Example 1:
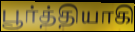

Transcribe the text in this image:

பூர்த்தியாகி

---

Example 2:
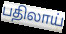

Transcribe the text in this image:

பதிலாய்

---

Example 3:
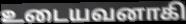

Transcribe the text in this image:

உடையவனாகி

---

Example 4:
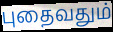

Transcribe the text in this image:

புதைவதும்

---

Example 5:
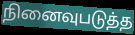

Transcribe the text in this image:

நினைவுபடுத்த